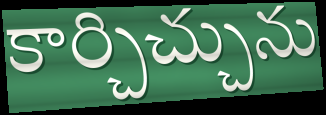
కార్చిచ్చును